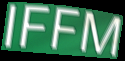
IFFM